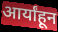
आर्यांहून